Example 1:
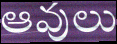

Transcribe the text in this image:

ఆవులు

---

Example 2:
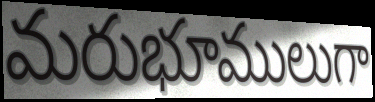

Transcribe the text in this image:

మరుభూములుగా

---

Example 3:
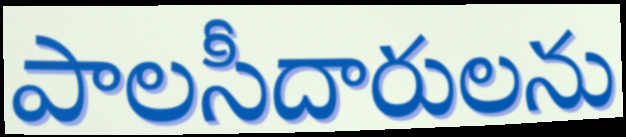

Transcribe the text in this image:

పాలసీదారులను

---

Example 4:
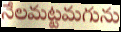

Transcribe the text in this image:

నేలమట్టమగును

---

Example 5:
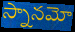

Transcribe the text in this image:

స్నానమో